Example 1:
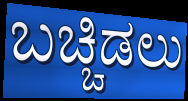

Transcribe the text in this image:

ಬಚ್ಚಿಡಲು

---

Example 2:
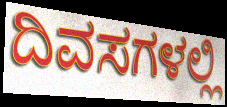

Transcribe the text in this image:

ದಿವಸಗಳಲ್ಲಿ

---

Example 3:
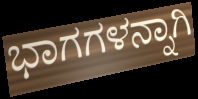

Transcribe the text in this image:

ಭಾಗಗಳನ್ನಾಗಿ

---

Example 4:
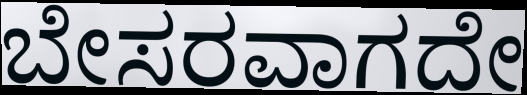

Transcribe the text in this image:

ಬೇಸರವಾಗದೇ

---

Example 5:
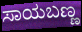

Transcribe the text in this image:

ಸಾಯಬಣ್ಣ